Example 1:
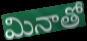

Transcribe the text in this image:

మినాతో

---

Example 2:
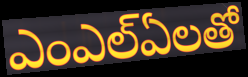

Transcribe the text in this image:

ఎంఎల్ఏలతో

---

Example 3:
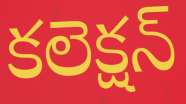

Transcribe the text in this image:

కలెక్షన్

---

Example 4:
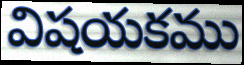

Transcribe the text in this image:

విషయకము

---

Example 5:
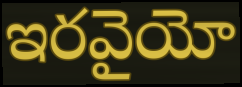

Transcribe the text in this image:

ఇరవైయో